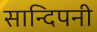
सान्दिपनी